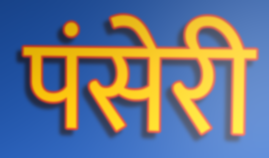
पंसेरी